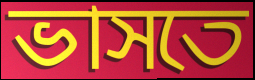
ভাসতে